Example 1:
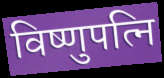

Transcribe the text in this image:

विष्णुपत्नि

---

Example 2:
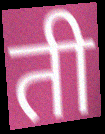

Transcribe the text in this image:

ती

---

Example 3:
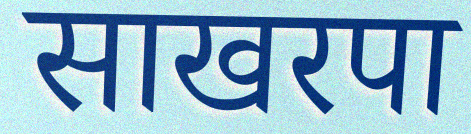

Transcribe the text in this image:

साखरपा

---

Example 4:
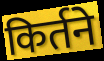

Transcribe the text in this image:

किर्तने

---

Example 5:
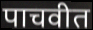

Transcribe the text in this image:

पाचवीत